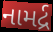
નામર્દ્ર